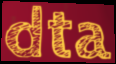
dta